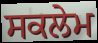
ਸਕਲੇਮ